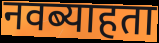
नवब्याहता